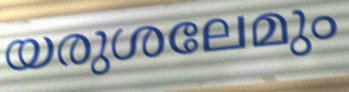
യരുശലേമും